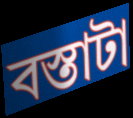
বস্তাটা